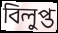
বিলুপ্ত